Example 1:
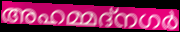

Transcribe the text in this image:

അഹമ്മദ്നഗർ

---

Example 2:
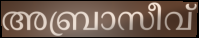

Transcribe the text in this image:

അബ്രാസീവ്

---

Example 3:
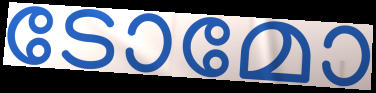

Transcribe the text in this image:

ടോമോ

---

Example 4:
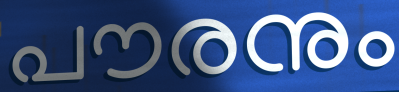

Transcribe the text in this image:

പൗരനും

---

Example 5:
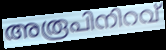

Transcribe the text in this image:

അരൂപിനിറവ്